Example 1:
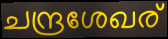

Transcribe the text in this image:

ചന്ദ്രശേഖര്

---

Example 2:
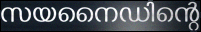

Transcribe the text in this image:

സയനൈഡിന്റെ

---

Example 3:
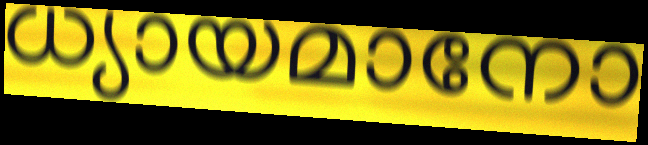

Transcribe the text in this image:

ധ്യായമാനോ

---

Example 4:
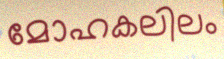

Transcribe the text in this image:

മോഹകലിലം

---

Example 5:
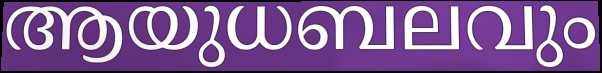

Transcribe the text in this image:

ആയുധബലവും